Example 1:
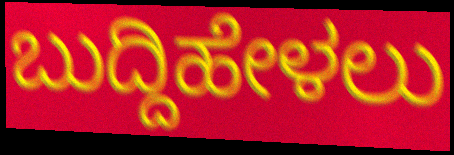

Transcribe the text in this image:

ಬುದ್ದಿಹೇಳಲು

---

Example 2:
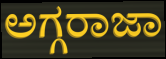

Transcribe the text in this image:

ಅಗ್ಗರಾಜಾ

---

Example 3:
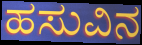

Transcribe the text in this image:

ಹಸುವಿನ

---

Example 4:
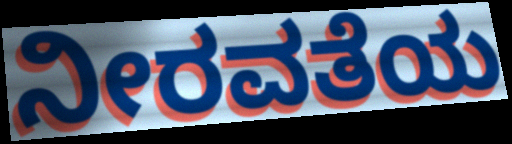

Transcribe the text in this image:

ನೀರವತೆಯ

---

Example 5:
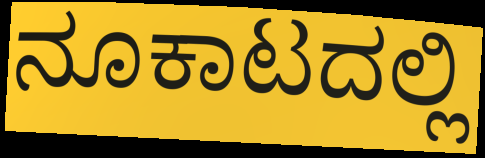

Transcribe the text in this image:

ನೂಕಾಟದಲ್ಲಿ